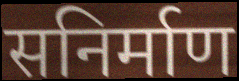
सनिर्माण